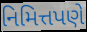
નિમિત્તપણે